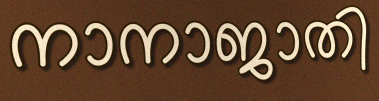
നാനാജാതി